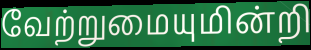
வேற்றுமையுமின்றி